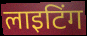
लाइटिंग